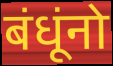
बंधूंनो